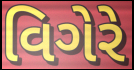
વિગેરે